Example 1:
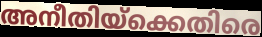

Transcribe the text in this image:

അനീതിയ്ക്കെതിരെ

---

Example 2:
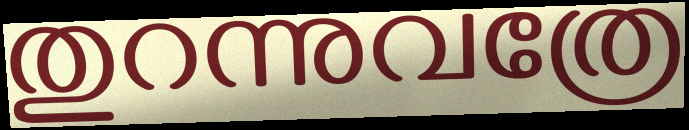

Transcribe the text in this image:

തുറന്നുവത്രേ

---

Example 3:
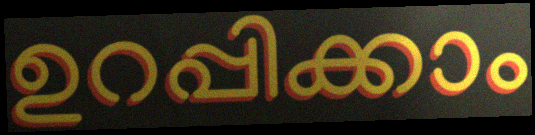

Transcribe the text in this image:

ഉറപ്പിക്കാം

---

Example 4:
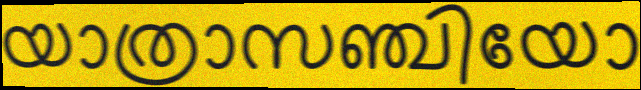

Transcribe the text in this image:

യാത്രാസഞ്ചിയോ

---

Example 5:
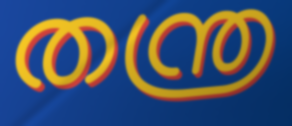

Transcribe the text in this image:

തന്ത്ര